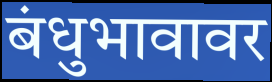
बंधुभावावर